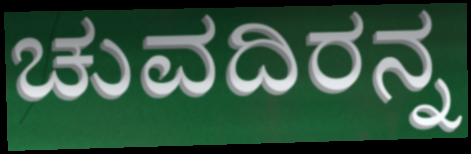
ಚುವದಿರನ್ನ